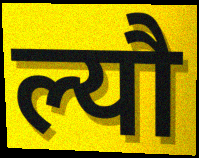
ल्यौ